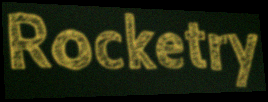
Rocketry